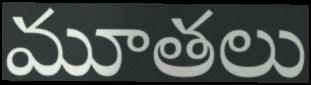
మూతలు